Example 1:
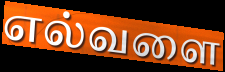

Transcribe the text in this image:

எல்வளை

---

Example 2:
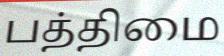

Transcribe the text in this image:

பத்திமை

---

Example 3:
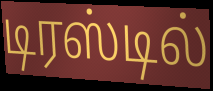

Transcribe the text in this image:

டிரஸ்டில்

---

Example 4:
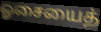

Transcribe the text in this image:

ஓசையைத்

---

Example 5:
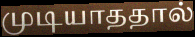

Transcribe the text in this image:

முடியாததால்